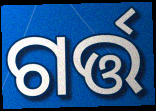
ଗର୍ତ୍ତ